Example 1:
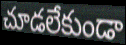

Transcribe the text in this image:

చూడలేకుండా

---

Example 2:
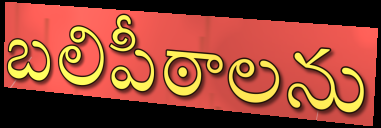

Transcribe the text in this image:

బలిపీఠాలను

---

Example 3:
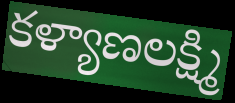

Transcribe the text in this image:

కళ్యాణలక్ష్మి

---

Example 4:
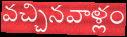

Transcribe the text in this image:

వచ్చినవాళ్లం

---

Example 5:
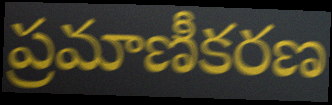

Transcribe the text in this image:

ప్రమాణీకరణ